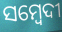
ସମ୍ବେଦୀ